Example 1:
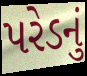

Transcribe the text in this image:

પરેડનું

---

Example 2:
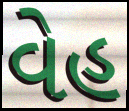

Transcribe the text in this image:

વેહ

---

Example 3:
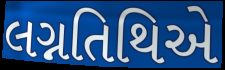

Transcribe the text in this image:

લગ્નતિથિએ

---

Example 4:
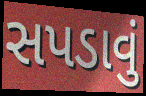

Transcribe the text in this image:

સપડાવું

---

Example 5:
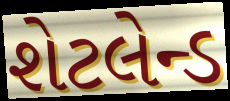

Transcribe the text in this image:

શેટલેન્ડ